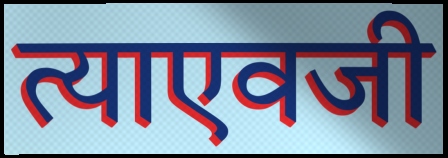
त्याएवजी